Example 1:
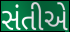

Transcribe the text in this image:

સંતીએ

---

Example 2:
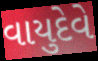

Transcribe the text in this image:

વાયુદેવે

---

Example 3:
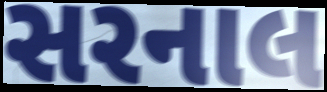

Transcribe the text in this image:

સરનાલ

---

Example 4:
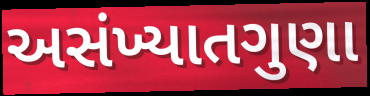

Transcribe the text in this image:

અસંખ્યાતગુણા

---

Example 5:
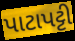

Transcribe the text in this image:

પાટાપટ્ટી